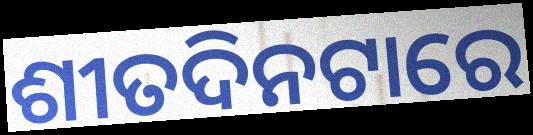
ଶୀତଦିନଟାରେ